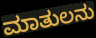
ಮಾತುಲನು